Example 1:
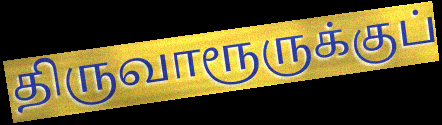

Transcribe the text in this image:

திருவாரூருக்குப்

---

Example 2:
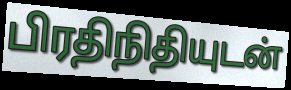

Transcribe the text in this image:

பிரதிநிதியுடன்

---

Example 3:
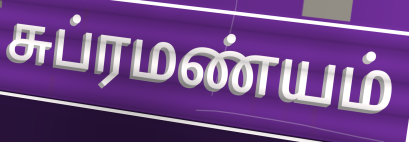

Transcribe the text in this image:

சுப்ரமண்யம்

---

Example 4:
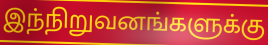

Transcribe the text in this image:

இந்நிறுவனங்களுக்கு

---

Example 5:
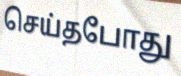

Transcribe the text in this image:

செய்தபோது